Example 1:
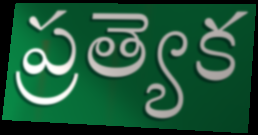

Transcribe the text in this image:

ప్రత్యెక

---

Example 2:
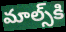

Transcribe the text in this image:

మాల్స్‌కి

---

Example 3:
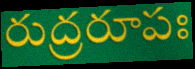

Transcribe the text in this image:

రుద్రరూపః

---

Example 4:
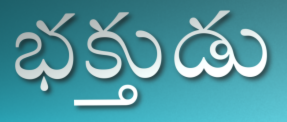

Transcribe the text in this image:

భక్తుడు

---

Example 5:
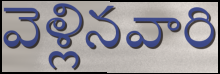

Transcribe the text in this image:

వెళ్లినవారి